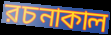
রচনাকাল